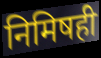
निमिषही